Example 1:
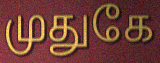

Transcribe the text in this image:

முதுகே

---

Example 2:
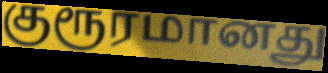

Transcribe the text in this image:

குரூரமானது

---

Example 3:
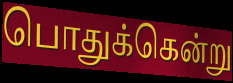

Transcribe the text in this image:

பொதுக்கென்று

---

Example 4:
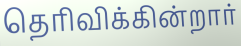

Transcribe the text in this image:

தெரிவிக்கின்றார்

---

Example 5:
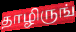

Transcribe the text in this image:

தாழிருங்